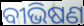
ବୀଭିଷଣ